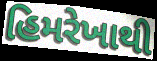
હિમરેખાથી